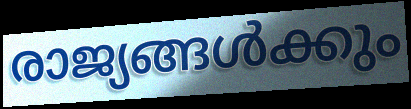
രാജ്യങ്ങൾക്കും